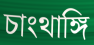
চাংথাঙ্গি